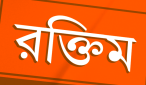
রক্তিম